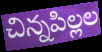
చిన్నపిల్లల